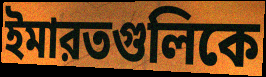
ইমারতগুলিকে